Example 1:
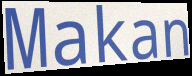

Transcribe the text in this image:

Makan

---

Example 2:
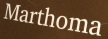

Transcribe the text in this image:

Marthoma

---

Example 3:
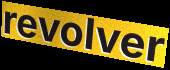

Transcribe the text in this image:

revolver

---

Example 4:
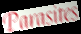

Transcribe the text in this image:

Parasites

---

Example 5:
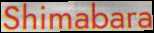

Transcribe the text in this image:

Shimabara